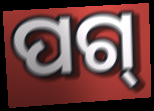
ପଗ୍